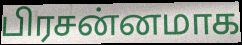
பிரசன்னமாக